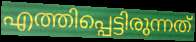
എത്തിപ്പെട്ടിരുന്നത്